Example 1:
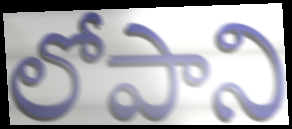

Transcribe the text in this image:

లోపాని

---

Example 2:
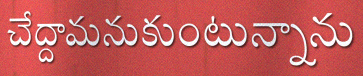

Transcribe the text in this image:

చేద్దామనుకుంటున్నాను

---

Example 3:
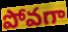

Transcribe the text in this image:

పోవగా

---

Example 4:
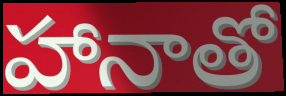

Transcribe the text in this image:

హానాతో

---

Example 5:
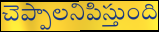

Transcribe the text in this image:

చెప్పాలనిపిస్తుంది